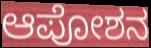
ಆಪೋಶನ